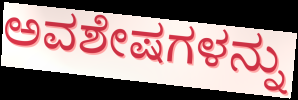
ಅವಶೇಷಗಳನ್ನು